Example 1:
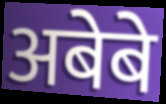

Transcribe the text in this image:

अबेबे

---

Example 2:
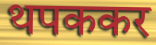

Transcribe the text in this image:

थपककर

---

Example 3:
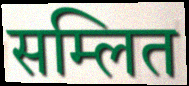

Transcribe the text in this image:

सम्लित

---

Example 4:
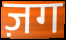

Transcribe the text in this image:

ज़ग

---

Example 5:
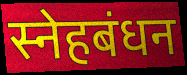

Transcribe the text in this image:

स्नेहबंधन